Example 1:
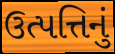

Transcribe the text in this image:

ઉત્પત્તિનું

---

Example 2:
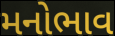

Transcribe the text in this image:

મનોભાવ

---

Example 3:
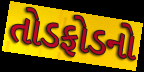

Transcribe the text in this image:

તોડફોડનો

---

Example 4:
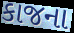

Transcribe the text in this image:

કાજના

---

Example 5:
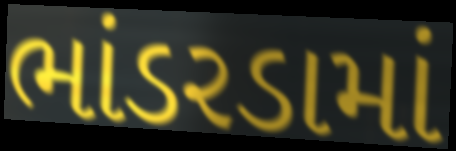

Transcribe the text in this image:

ભાંડરડામાં